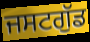
ਜਸਟਗੁੱਡ